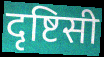
दृष्टिसी